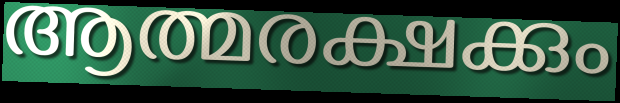
ആത്മരക്ഷക്കും